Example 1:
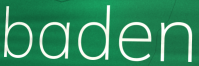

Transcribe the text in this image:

baden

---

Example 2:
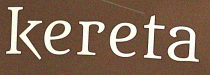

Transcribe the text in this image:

kereta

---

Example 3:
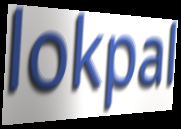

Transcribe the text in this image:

lokpal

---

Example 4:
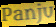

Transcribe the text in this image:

Panju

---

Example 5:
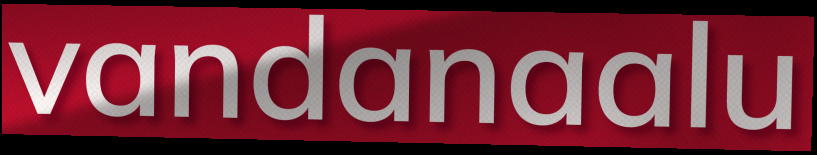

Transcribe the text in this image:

vandanaalu